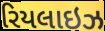
રિયલાઇઝ